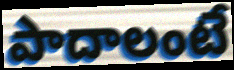
పాదాలంటే